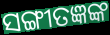
ସଙ୍ଗୀତଜ୍ଞଙ୍କ